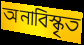
অনাবিস্কৃত